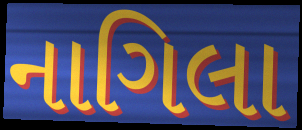
નાગિલા